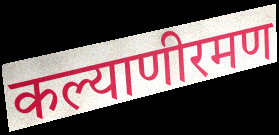
कल्याणीरमण